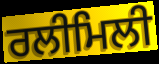
ਰਲੀਮਿਲੀ